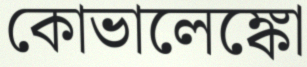
কোভালেঙ্কো